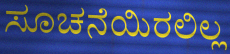
ಸೂಚನೆಯಿರಲಿಲ್ಲ